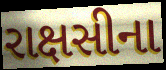
રાક્ષસીના